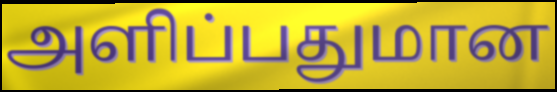
அளிப்பதுமான